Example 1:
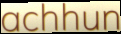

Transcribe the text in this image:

achhun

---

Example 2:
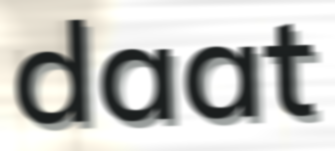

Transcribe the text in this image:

daat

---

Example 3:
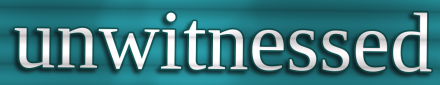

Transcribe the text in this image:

unwitnessed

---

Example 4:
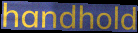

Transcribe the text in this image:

handhold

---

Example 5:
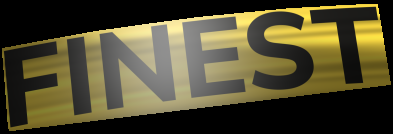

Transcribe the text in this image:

FINEST